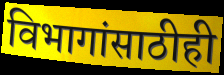
विभागांसाठीही